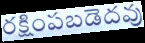
రక్షింపబడెదవు